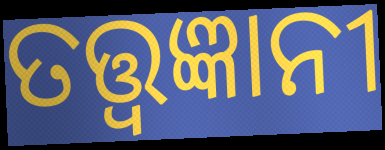
ତତ୍ତ୍ଵଜ୍ଞାନୀ